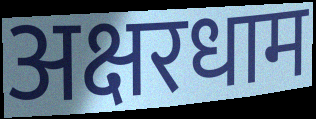
अक्षरधाम